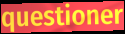
questioner